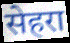
सेहरा